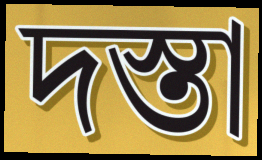
দস্তা